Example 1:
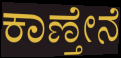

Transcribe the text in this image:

ಕಾಣ್ತೇನೆ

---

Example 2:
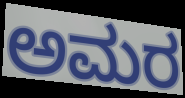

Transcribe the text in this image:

ಅಮರ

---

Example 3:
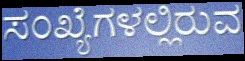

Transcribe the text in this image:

ಸಂಖ್ಯೆಗಳಲ್ಲಿರುವ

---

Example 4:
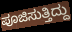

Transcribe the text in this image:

ಪೂಜಿಸುತ್ತಿದ್ದು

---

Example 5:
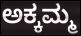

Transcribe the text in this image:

ಅಕ್ಕಮ್ಮ